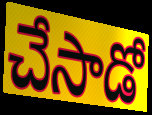
చేసాడో